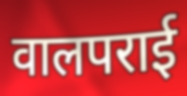
वालपराई